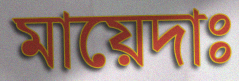
মায়েদাঃ